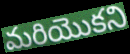
మరియొకని